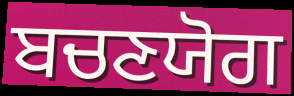
ਬਚਣਯੋਗ